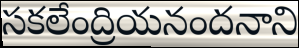
సకలేంద్రియనందనాని